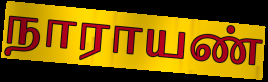
நாராயண்